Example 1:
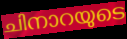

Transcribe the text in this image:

ചിനാറയുടെ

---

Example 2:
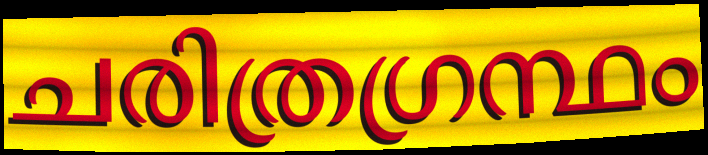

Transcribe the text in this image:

ചരിത്രഗ്രന്ഥം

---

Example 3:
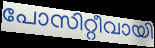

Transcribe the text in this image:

പോസിറ്റീവായി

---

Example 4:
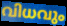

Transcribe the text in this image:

വിധവും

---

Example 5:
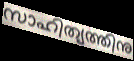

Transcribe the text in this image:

സാഹിത്യത്തിനു